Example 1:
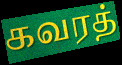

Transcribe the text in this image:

கவரத்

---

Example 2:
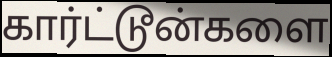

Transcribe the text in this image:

கார்ட்டூன்களை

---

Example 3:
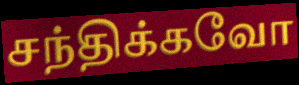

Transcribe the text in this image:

சந்திக்கவோ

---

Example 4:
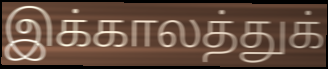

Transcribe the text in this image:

இக்காலத்துக்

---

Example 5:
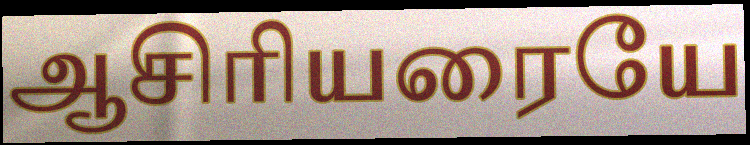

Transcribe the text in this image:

ஆசிரியரையே